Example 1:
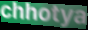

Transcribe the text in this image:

chhotya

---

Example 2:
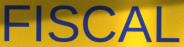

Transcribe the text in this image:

FISCAL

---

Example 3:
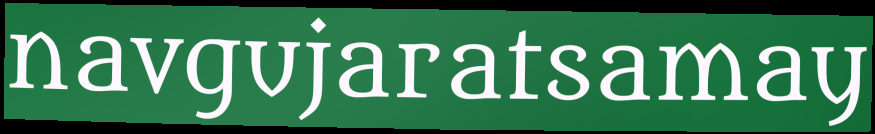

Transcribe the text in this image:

navgujaratsamay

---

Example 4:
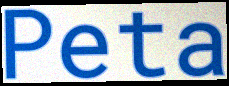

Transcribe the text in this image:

Peta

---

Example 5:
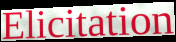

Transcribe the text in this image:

Elicitation